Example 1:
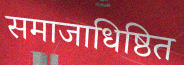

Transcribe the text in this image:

समाजाधिष्ठित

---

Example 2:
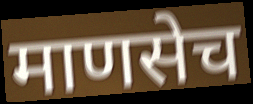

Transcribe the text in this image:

माणसेच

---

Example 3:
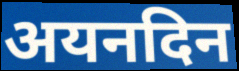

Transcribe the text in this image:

अयनदिन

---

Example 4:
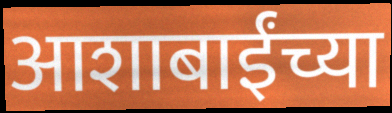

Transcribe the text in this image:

आशाबाईंच्या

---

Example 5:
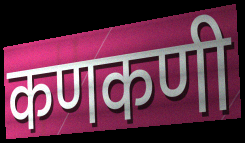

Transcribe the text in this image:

कणकणी